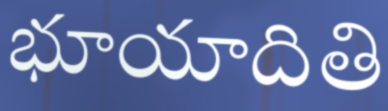
భూయాదితి